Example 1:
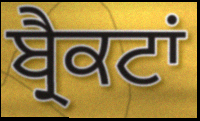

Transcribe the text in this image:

ਬ੍ਰੈਕਟਾਂ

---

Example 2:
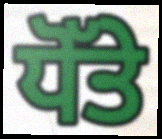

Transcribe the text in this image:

ਧੋੱਤੇ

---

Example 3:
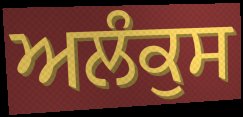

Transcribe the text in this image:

ਅਲੰਕੁਸ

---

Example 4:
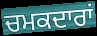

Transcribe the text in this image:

ਚਮਕਦਾਰਾਂ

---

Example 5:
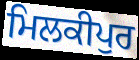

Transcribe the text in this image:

ਮਿਲਕੀਪੁਰ